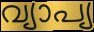
വ്യാപ്യ